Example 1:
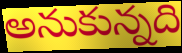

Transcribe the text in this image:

అనుకున్నది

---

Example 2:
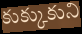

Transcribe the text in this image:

కుక్కుకుని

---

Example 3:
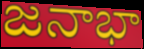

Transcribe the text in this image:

జనాభా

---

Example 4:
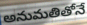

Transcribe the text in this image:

అనుమతితోనే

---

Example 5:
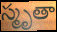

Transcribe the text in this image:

స్మృతా